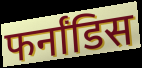
फर्नांडिस